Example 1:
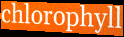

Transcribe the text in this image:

chlorophyll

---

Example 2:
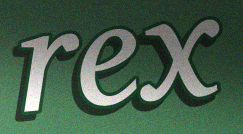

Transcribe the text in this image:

rex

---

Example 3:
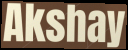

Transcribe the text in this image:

Akshay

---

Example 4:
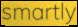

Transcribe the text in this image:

smartly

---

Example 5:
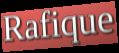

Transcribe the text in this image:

Rafique